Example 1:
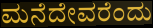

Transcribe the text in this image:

ಮನೆದೇವರೆಂದು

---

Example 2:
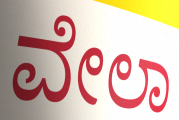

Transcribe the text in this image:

ವೇಲಾ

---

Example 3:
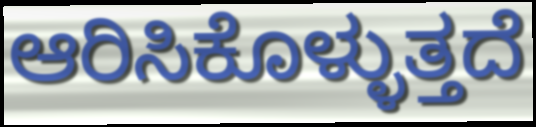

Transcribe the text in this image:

ಆರಿಸಿಕೊಳ್ಳುತ್ತದೆ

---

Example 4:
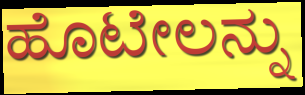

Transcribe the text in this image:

ಹೊಟೇಲನ್ನು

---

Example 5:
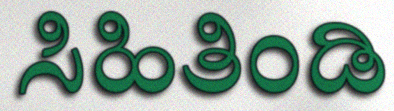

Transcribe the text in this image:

ಸಿಹಿತಿಂಡಿ